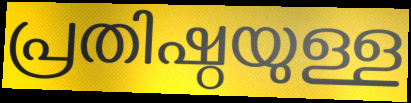
പ്രതിഷ്ഠയുള്ള